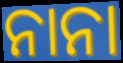
ନାନା